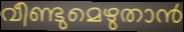
വീണ്ടുമെഴുതാൻ